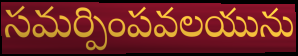
సమర్పింపవలయును